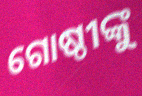
ଗୋଷ୍ଠୀଙ୍କୁ